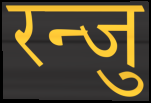
रन्जु